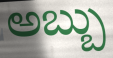
అబ్బు